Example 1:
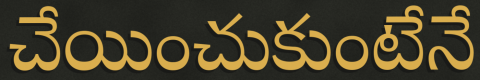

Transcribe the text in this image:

చేయించుకుంటేనే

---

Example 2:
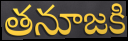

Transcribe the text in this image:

తనూజకి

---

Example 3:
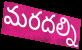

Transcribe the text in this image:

మరదల్ని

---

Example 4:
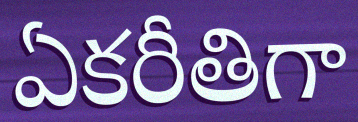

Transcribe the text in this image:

ఏకరీతిగా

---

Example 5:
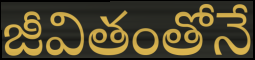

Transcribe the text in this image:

జీవితంతోనే